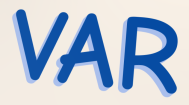
VAR